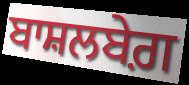
ਬਾਸ਼ਲਬੇਗ਼